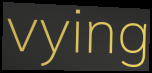
vying